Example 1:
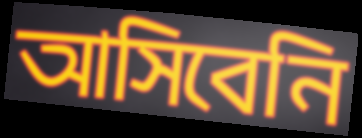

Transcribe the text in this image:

আসিবেনি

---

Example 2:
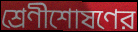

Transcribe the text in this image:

শ্রেণীশোষণের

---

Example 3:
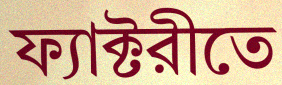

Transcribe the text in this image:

ফ্যাক্টরীতে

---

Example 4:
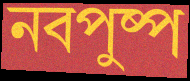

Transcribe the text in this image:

নবপুষ্প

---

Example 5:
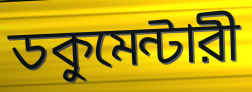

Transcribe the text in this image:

ডকুমেন্টারী